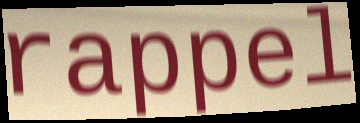
rappel